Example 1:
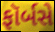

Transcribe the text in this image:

ફૉર્બસે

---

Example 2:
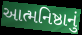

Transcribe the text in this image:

આત્મનિષ્ઠાનું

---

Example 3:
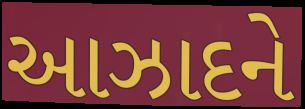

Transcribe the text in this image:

આઝાદને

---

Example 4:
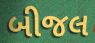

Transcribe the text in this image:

બીજલ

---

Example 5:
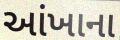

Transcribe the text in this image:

આંખાના